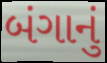
બંગાનું